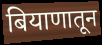
बियाणातून